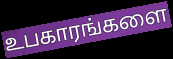
உபகாரங்களை